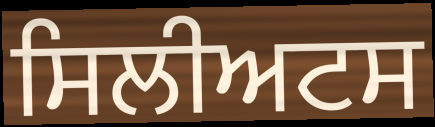
ਸਿਲੀਅਟਸ